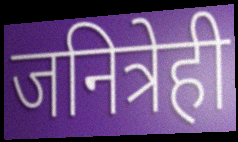
जनित्रेही